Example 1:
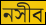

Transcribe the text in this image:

নসীব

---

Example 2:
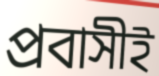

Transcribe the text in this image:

প্রবাসীই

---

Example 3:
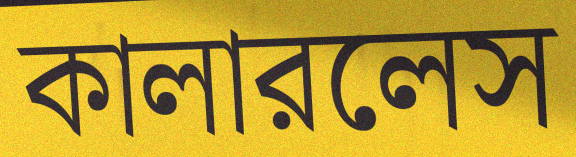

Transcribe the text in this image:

কালারলেস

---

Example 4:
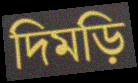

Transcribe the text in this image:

দিমড়ি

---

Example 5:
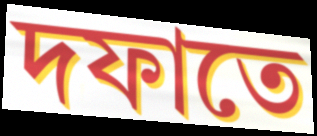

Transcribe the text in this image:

দফাতে